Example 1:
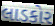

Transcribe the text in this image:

લાડકોર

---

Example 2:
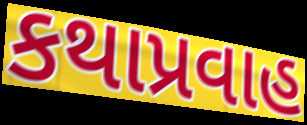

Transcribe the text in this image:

કથાપ્રવાહ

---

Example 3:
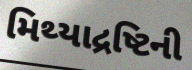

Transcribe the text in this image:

મિથ્યાદ્રષ્ટિની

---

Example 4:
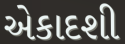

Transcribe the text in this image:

એકાદશી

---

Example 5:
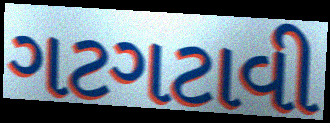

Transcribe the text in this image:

ગટગટાવી